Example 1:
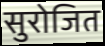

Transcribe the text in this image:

सुरोजित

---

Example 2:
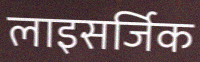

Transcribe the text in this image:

लाइसर्जिक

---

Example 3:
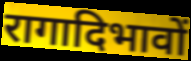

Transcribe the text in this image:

रागादिभावों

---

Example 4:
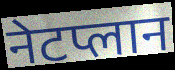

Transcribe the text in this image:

नेटप्लान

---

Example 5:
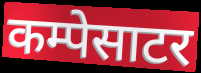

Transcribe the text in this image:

कम्पेसाटर